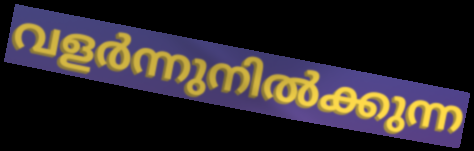
വളർന്നുനിൽക്കുന്ന